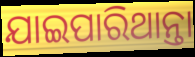
ଯାଇପାରିଥାନ୍ତା